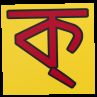
ক্